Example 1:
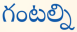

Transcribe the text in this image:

గంటల్ని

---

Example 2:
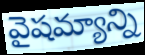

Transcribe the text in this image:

వైషమ్యాన్ని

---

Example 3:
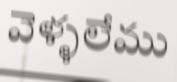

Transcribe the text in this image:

వెళ్ళలేము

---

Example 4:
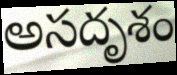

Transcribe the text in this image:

అసదృశం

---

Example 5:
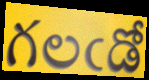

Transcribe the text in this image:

గలఁడో